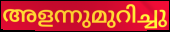
അളന്നുമുറിച്ചു